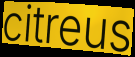
citreus